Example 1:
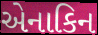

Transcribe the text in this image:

એનાકિન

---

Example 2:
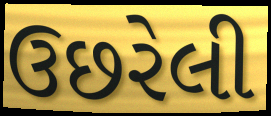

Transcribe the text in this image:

ઉછરેલી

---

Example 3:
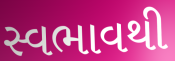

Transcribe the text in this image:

સ્વભાવથી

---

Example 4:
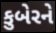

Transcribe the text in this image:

કુબેરને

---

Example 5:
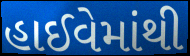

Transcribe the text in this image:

હાઈવેમાંથી